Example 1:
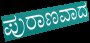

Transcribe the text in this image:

ಪುರಾಣವಾದ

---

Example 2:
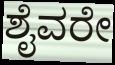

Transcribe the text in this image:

ಶೈವರೇ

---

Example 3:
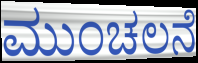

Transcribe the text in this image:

ಮುಂಚಲನೆ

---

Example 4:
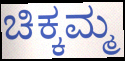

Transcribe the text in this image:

ಚಿಕ್ಕಮ್ಮ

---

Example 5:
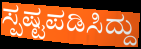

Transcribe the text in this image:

ಸ್ಪಷ್ಟಪಡಿಸಿದ್ದು